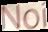
Noi